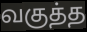
வகுத்த